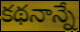
కథనాన్నే